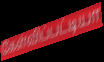
கேள்விப்பட்டியா